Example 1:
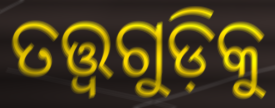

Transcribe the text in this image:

ତତ୍ତ୍ୱଗୁଡ଼ିକୁ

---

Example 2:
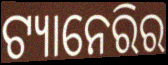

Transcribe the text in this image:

ଟ୍ୟାନେରିର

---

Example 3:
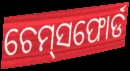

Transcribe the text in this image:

ଚେମ୍‌ସଫୋର୍ଡ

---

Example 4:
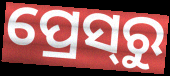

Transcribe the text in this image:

ପ୍ରେସ୍‌ରୁ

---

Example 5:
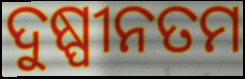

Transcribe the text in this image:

ଦୁଷ୍ପୀନତମ